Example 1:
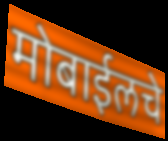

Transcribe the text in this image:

मोबाईलचे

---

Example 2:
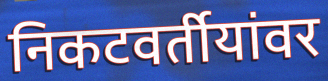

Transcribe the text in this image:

निकटवर्तीयांवर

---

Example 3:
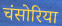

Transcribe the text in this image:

चंसोरिया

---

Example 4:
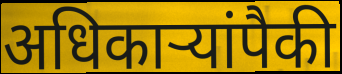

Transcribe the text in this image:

अधिकार्‍यांपैकी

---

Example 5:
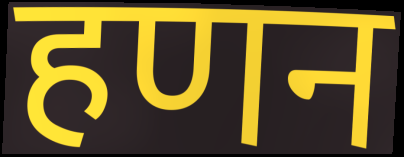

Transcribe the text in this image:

हणन